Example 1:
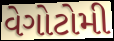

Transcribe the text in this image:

વેગોટોમી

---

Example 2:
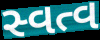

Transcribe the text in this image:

સ્વત્વ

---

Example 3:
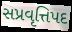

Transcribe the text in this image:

સપ્રવૃત્તિપદ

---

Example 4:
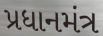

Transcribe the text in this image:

પ્રધાનમંત્ર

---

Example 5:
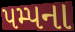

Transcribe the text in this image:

પમ્પના